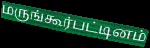
மருங்கூர்பட்டினம்